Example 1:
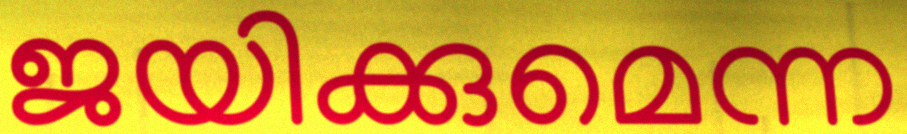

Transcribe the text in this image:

ജയിക്കുമെന്ന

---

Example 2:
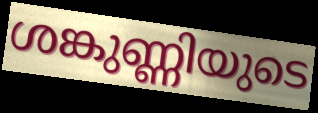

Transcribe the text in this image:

ശങ്കുണ്ണിയുടെ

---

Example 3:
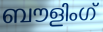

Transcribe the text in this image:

ബൗളിംഗ്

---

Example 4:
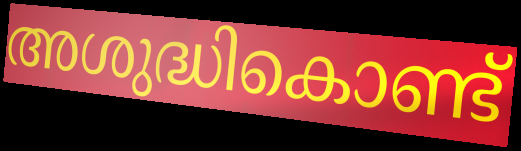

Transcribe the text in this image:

അശുദ്ധികൊണ്ട്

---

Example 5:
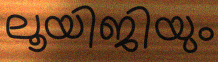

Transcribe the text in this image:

ലൂയിജിയും